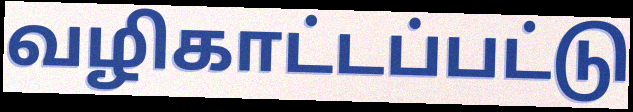
வழிகாட்டப்பட்டு